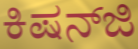
ಕಿಷನ್‌ಜಿ